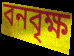
বনবৃক্ষ